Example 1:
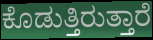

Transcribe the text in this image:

ಕೊಡುತ್ತಿರುತ್ತಾರೆ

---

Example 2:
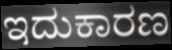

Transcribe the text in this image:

ಇದುಕಾರಣ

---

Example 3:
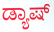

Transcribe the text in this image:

ಡ್ಯಾಷ್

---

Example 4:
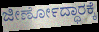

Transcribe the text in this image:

ಜೀರ್ಣೋದ್ಧಾರಕ್ಕೆ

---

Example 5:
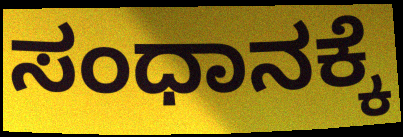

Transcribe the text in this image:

ಸಂಧಾನಕ್ಕೆ